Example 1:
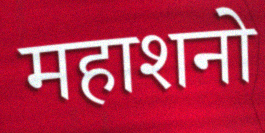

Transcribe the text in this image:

महाशनो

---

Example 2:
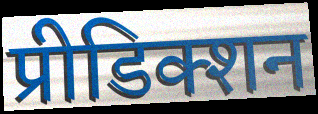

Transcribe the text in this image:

प्रीडिक्शन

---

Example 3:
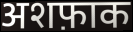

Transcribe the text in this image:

अशफ़ाक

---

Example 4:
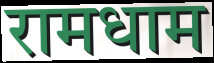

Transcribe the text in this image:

रामधाम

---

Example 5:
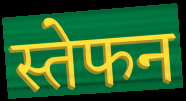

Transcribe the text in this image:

स्तेफन